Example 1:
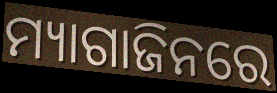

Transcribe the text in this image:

ମ୍ୟାଗାଜିନରେ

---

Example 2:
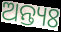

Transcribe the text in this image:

ଅନ୍ତ୍ୟଃ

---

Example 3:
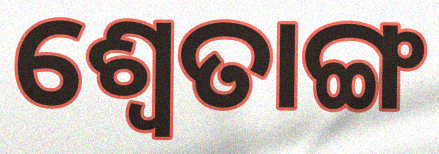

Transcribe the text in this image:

ଶ୍ୱେତାଙ୍ଗ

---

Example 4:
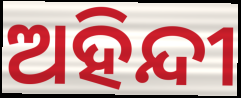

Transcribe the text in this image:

ଅହିନ୍ଦୀ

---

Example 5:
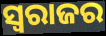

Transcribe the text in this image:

ସ୍ୱରାଜର